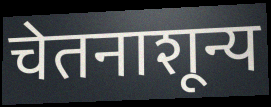
चेतनाशून्य